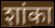
शांका